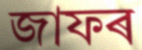
জাফৰ